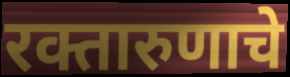
रक्तारुणाचे